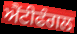
ਐਂਟੀਫੰਗਲ